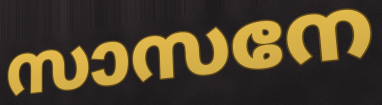
സാസനേ